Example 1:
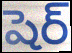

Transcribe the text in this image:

షెర్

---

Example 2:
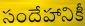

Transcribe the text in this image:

సందేహానికీ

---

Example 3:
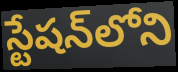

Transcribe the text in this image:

స్టేషన్‌లోని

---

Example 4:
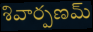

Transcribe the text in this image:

శివార్పణమ్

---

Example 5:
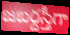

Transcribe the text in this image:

జబర్దస్తీగా